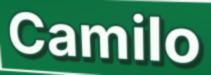
Camilo